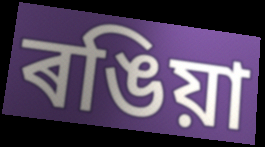
ৰঙিয়া